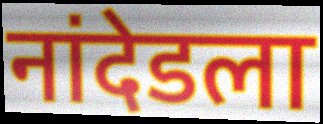
नांदेडला